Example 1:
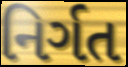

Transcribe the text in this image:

નિર્ગત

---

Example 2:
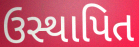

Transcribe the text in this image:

ઉસ્થાપિત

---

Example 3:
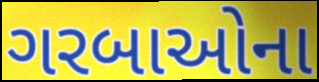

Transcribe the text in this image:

ગરબાઓના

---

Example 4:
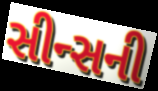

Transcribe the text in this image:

સીન્સની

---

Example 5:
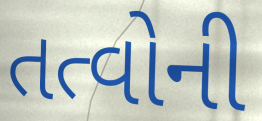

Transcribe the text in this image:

તત્વોની